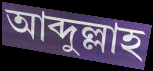
আব্দুল্লাহ